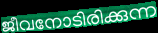
ജീവനോടിരിക്കുന്ന